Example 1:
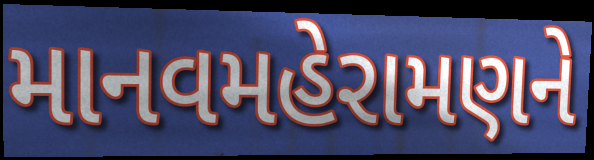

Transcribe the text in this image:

માનવમહેરામણને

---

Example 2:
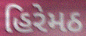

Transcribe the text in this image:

હિરેમઠ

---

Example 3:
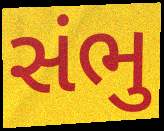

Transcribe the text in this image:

સંભુ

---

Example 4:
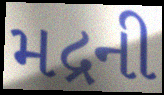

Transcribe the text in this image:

મદ્રની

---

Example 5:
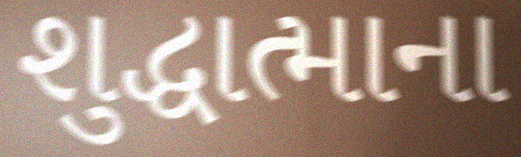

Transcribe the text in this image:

શુદ્ધાત્માના